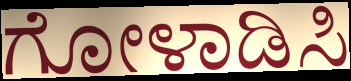
ಗೋಳಾಡಿಸಿ